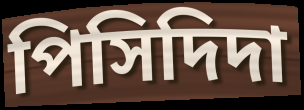
পিসিদিদা